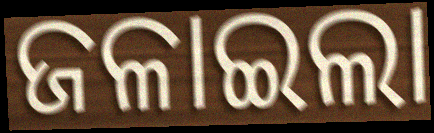
ଜଳାଇଲା